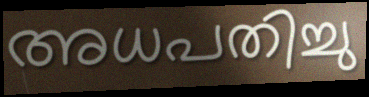
അധപതിച്ചു